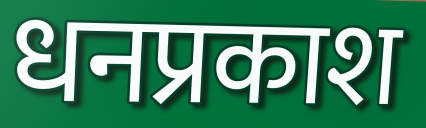
धनप्रकाश